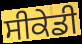
ਸੀਕੇਡੀ